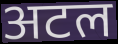
अटल